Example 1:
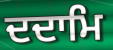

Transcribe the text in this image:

ਦਦਾਮਿ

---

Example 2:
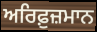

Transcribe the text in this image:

ਅਰਿਫ਼ੁਜ਼ਮਾਨ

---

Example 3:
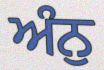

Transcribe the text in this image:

ਅੰਨੁ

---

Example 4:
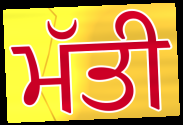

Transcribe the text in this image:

ਮੱਤੀ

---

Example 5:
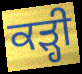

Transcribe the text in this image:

ਕੜ੍ਹੀ